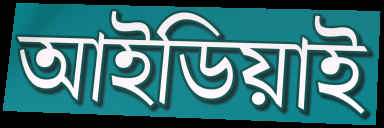
আইডিয়াই